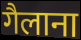
गैलाना